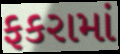
ફકરામાં